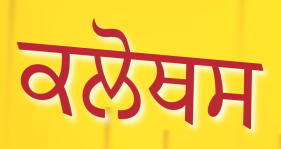
ਕਲੋਥਸ